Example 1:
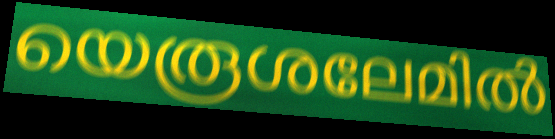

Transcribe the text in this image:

യെരൂശലേമിൽ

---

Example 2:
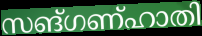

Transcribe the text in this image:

സങ്ഗണ്ഹാതി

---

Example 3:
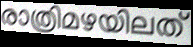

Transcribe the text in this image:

രാത്രിമഴയിലത്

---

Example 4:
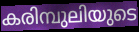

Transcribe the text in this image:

കരിമ്പുലിയുടെ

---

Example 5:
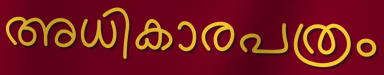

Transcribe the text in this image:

അധികാരപത്രം